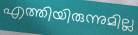
എത്തിയിരുന്നുമില്ല